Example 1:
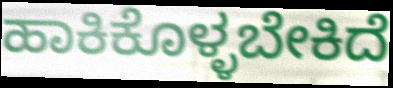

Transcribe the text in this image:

ಹಾಕಿಕೊಳ್ಳಬೇಕಿದೆ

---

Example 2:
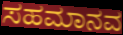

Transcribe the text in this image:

ಸಹಮಾನವ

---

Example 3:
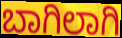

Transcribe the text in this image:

ಬಾಗಿಲಾಗಿ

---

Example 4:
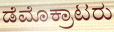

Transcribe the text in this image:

ಡೆಮೊಕ್ರಾಟರು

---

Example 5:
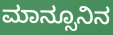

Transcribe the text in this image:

ಮಾನ್ಸೂನಿನ